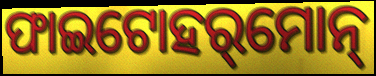
ଫାଇଟୋହର୍‌ମୋନ୍